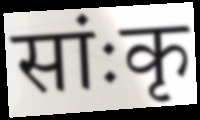
सांःकृ